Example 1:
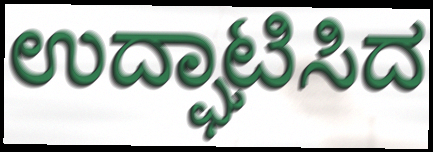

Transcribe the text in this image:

ಉದ್ಘಾಟಿಸಿದ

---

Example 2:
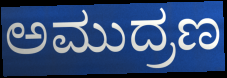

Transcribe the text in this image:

ಅಮುದ್ರಣ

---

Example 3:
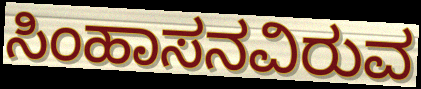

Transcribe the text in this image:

ಸಿಂಹಾಸನವಿರುವ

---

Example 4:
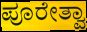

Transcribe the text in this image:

ಪೂರೇತ್ವಾ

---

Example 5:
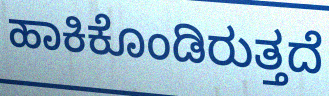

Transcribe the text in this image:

ಹಾಕಿಕೊಂಡಿರುತ್ತದೆ